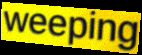
weeping